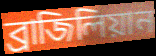
ব্রাজিলিয়ান